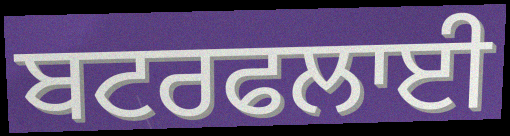
ਬਟਰਫਲਾਈ